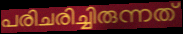
പരിചരിച്ചിരുന്നത്